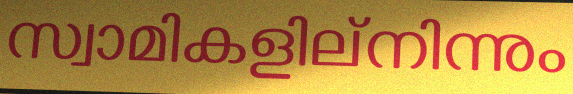
സ്വാമികളില്നിന്നും